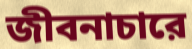
জীবনাচারে